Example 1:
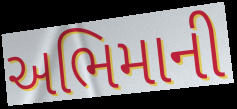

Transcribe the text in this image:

અભિમાની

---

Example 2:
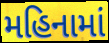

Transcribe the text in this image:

મહિનામાં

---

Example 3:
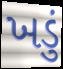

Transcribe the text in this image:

ખડું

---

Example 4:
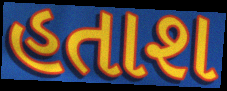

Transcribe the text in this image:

હતાશ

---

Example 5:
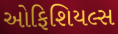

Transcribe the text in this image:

ઓફિશિયલ્સ